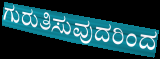
ಗುರುತಿಸುವುದರಿಂದ